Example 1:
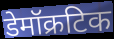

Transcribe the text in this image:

डेमॉक्रटिक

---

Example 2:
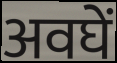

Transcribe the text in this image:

अवघें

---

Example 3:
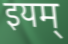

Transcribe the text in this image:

इयम्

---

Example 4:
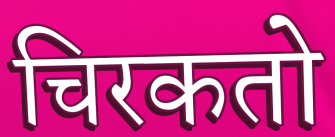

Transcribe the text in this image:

चिरकतो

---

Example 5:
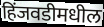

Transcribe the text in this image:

हिंजवडीमधील